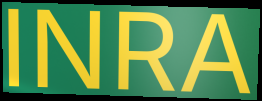
INRA